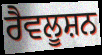
ਰੈਵਲੂਸ਼ਨ